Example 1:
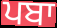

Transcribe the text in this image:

ਪਬਾ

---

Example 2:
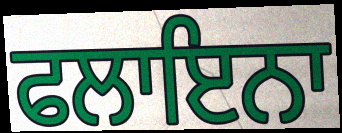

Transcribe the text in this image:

ਫਲਾਇਨਾ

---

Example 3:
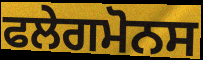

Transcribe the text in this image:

ਫਲੇਗਮੋਨਸ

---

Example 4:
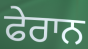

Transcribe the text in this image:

ਫੇਰਾਨ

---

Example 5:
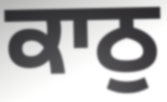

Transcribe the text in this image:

ਕਾਠੁ